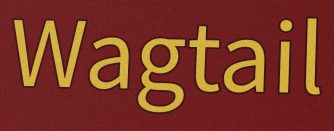
Wagtail